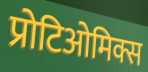
प्रोटिओमिक्स